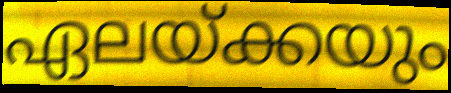
ഏലയ്ക്കയും